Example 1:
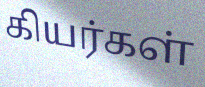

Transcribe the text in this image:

கியர்கள்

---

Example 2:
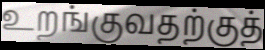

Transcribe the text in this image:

உறங்குவதற்குத்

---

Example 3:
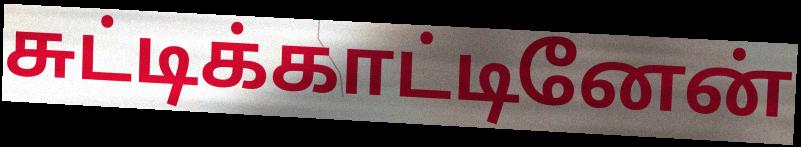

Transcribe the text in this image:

சுட்டிக்காட்டினேன்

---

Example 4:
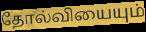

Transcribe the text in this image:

தோல்வியையும்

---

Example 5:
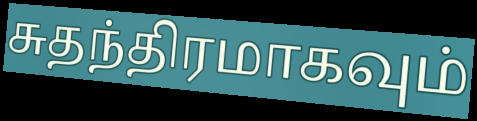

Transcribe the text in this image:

சுதந்திரமாகவும்